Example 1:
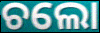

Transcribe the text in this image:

ଚଲୋ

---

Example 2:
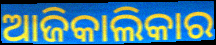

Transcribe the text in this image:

ଆଜିକାଲିକାର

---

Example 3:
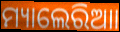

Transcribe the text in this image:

ମ୍ୟାଲେରିଆା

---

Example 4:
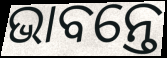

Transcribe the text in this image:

ଭାବନ୍ତେ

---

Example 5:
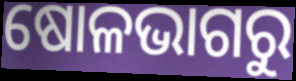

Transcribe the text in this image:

ଷୋଳଭାଗରୁ